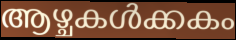
ആഴ്ചകൾക്കകം